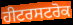
ਹੀਟਰਸਟਰੋਕ